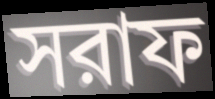
সরাফ